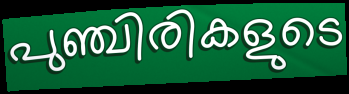
പുഞ്ചിരികളുടെ